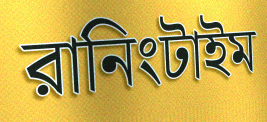
রানিংটাইম